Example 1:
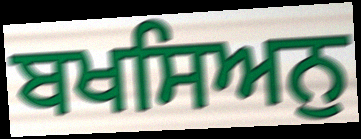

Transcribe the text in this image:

ਬਖਸਿਅਨੁ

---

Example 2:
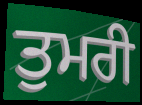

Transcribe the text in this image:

ਤੁਮਰੀ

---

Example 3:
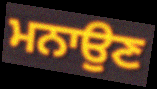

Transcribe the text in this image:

ਮਨਾਉਣ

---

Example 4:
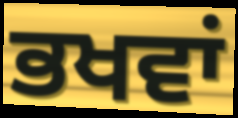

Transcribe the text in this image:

ਭਖਵਾਂ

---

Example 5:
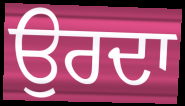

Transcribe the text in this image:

ਉਰਦਾ